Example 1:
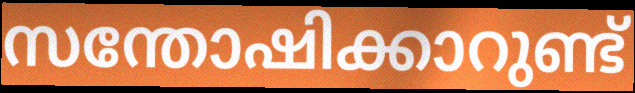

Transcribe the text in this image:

സന്തോഷിക്കാറുണ്ട്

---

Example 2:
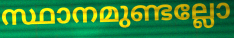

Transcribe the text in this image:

സ്ഥാനമുണ്ടല്ലോ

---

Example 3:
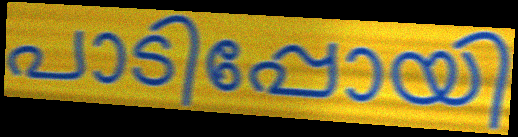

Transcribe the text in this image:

പാടിപ്പോയി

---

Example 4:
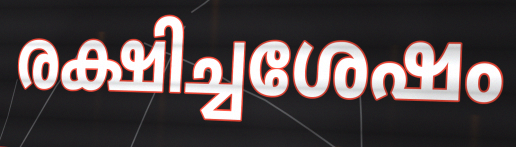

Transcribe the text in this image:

രക്ഷിച്ചശേഷം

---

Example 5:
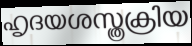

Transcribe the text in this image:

ഹൃദയശസ്ത്രക്രിയ